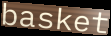
basket